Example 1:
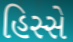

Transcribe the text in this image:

હિસ્સે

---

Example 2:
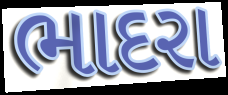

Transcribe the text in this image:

ભાદરા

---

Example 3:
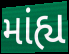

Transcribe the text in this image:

માંહ્ય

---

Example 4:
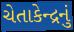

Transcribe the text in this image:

ચેતાકેન્દ્રનું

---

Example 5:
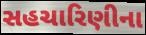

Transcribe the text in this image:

સહચારિણીના